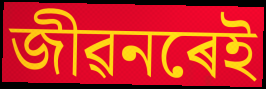
জীৱনৰেই